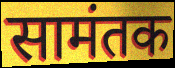
सामंतक